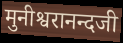
मुनीश्वरानन्दजी